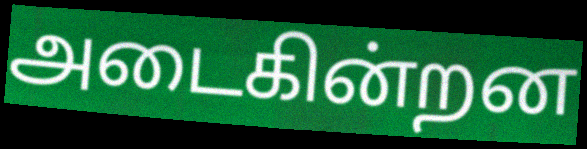
அடைகின்றன